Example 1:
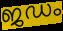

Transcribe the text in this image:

ജഡം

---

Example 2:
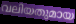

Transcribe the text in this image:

വലിയതുമായ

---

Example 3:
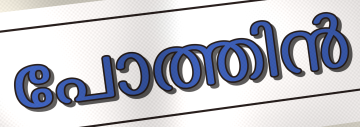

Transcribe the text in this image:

പോത്തിൻ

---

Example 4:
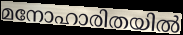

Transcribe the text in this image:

മനോഹാരിതയിൽ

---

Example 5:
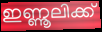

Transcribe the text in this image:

ഇണ്ണൂലിക്ക്